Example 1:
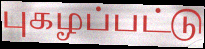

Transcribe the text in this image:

புகழப்பட்டு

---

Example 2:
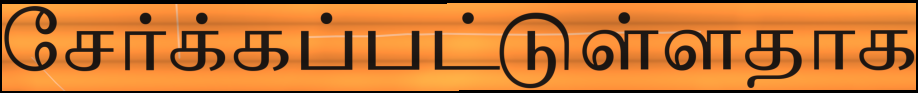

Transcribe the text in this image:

சேர்க்கப்பட்டுள்ளதாக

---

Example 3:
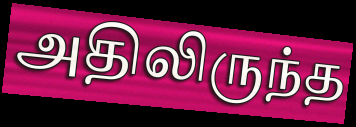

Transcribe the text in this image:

அதிலிருந்த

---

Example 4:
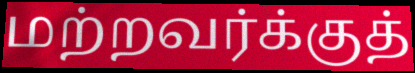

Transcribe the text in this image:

மற்றவர்க்குத்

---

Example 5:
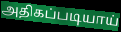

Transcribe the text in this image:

அதிகப்படியாய்